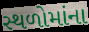
સ્થળોમાંના